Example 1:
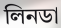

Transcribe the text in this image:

লিনডা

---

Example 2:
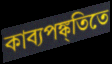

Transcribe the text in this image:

কাব্যপঙ্ক্তিতে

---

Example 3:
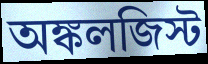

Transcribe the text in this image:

অঙ্কলজিস্ট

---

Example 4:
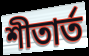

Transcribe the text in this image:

শীতার্ত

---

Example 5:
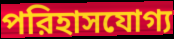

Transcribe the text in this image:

পরিহাসযোগ্য